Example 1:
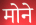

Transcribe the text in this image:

मोने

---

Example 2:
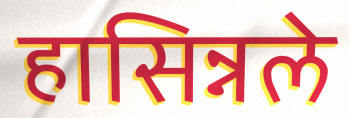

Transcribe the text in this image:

हासिन्नले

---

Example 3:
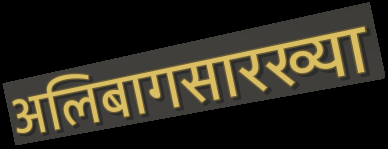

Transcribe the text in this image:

अलिबागसारख्या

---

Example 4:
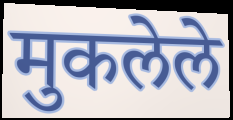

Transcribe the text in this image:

मुकलेले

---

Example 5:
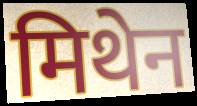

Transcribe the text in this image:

मिथेन